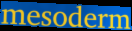
mesoderm